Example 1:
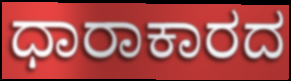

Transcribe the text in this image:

ಧಾರಾಕಾರದ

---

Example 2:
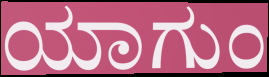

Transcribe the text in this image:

ಯಾಗುಂ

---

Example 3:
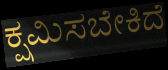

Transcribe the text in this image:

ಕ್ಷಮಿಸಬೇಕಿದೆ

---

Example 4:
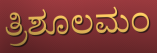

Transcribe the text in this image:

ತ್ರಿಶೂಲಮಂ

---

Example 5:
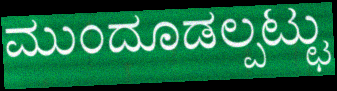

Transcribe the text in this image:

ಮುಂದೂಡಲ್ಪಟ್ಟು